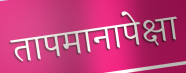
तापमानापेक्षा